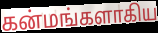
கன்மங்களாகிய